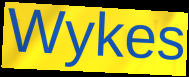
Wykes